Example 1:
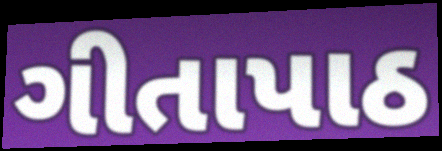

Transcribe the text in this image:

ગીતાપાઠ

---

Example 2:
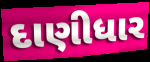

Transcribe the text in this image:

દાણીધાર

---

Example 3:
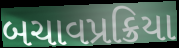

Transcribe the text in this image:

બચાવપ્રક્રિયા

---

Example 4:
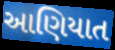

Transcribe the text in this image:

આણિયાત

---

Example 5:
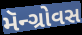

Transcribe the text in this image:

મૅન્ગ્રોવસ